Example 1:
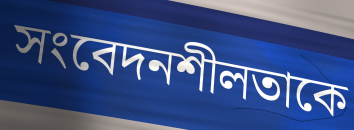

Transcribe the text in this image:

সংবেদনশীলতাকে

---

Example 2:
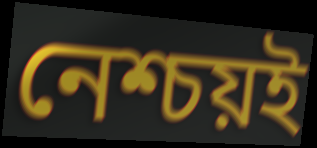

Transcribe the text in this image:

নেশ্চয়ই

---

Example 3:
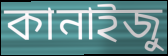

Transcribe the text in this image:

কানাইজু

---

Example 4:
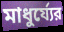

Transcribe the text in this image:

মাধুর্য্যের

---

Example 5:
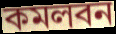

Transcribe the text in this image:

কমলবন